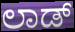
ಲಾಡ್